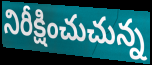
నిరీక్షించుచున్న